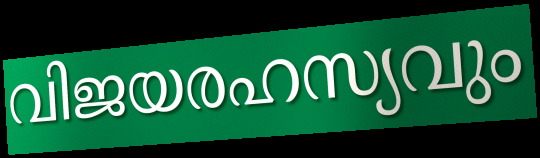
വിജയരഹസ്യവും